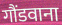
गौंडवाना